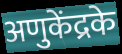
अणुकेंद्रके